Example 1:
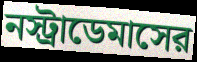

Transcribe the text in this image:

নস্ট্রাডেমাসের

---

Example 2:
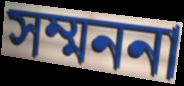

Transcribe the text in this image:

সম্মননা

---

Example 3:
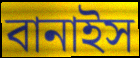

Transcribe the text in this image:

বানাইস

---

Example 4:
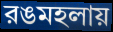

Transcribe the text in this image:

রঙমহলায়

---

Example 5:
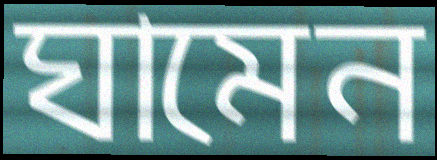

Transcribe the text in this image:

ঘামেন